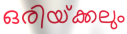
ഒരിയ്‌ക്കലും